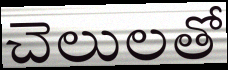
చెలులతో